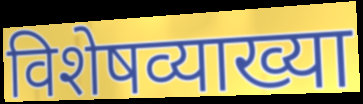
विशेषव्याख्या